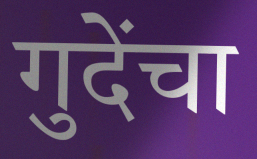
गुदेंचा